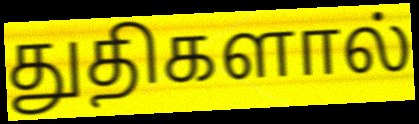
துதிகளால்